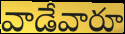
వాడేవారూ